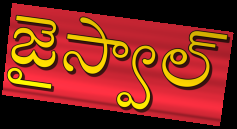
జైస్వాల్